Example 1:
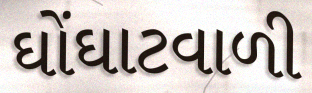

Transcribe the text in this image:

ઘોંઘાટવાળી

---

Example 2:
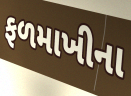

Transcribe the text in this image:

ફળમાખીના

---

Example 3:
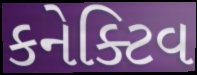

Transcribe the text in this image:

કનેક્ટિવ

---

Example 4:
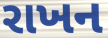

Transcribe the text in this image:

રાખન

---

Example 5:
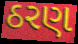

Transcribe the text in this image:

ઠરણ